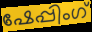
ഷേപ്പിംഗ്